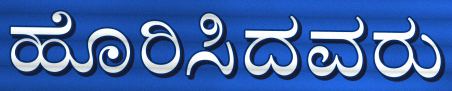
ಹೊರಿಸಿದವರು